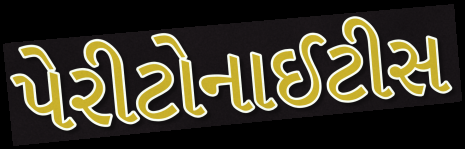
પેરીટોનાઈટીસ